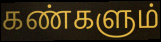
கண்களும்